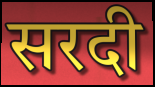
सरदी